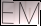
EM